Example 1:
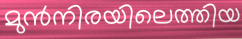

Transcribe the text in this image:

മുൻനിരയിലെത്തിയ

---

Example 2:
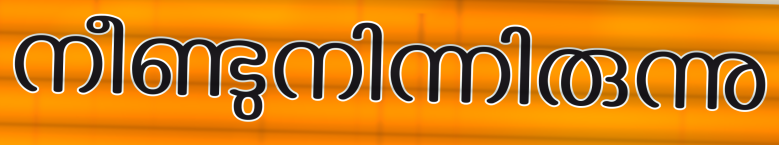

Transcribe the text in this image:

നീണ്ടുനിന്നിരുന്നു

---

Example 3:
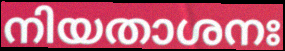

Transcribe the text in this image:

നിയതാശനഃ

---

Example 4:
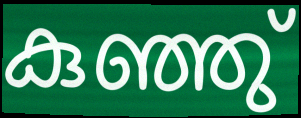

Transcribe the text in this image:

കുഞ്ഞു്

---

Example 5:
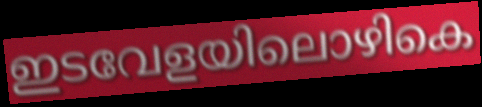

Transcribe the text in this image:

ഇടവേളയിലൊഴികെ